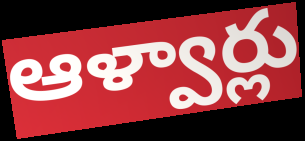
ఆళ్వార్లు